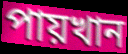
পায়খান